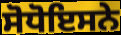
ਸੋਧੋਇਸਨੇ